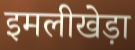
इमलीखेड़ा